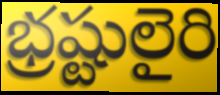
భ్రష్టులైరి